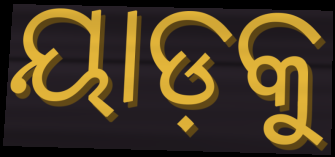
ୟାଡ଼କୁ